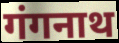
गंगनाथ